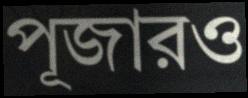
পূজারও